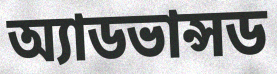
অ্যাডভান্সড